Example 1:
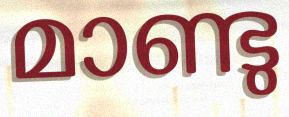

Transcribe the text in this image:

മാണ്ടു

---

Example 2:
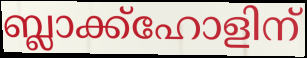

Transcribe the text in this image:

ബ്ലാക്ക്ഹോളിന്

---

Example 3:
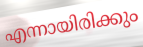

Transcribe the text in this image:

എന്നായിരിക്കും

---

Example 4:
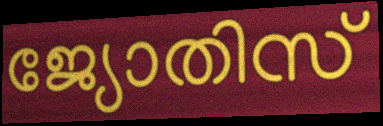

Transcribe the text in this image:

ജ്യോതിസ്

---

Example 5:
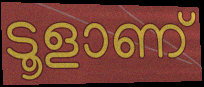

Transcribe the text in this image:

ടൂളാണ്